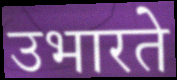
उभारते